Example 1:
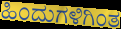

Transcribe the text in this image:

ಹಿಂದುಗಳಿಗಿಂತ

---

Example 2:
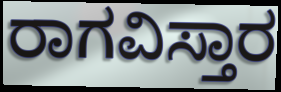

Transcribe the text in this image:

ರಾಗವಿಸ್ತಾರ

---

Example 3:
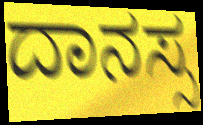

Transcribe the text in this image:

ದಾನಸ್ಸ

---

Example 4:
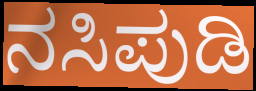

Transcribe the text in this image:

ನಸಿಪುಡಿ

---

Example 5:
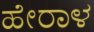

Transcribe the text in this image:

ಹೇರಾಳ